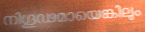
നിഗൂഢമായെങ്കിലും